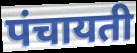
पंचायती